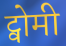
ट्वोमी